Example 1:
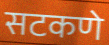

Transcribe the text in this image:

सटकणे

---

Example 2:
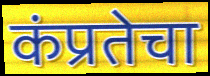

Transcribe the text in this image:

कंप्रतेचा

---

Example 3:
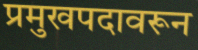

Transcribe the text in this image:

प्रमुखपदावरून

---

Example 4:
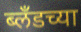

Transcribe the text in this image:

ब्लँडच्या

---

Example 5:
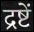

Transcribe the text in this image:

द्रष्टें